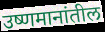
उष्णमानांतील